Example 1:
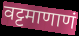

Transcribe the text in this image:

वट्टमाणाणं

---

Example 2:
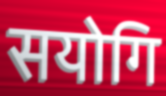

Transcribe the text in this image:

सयोगि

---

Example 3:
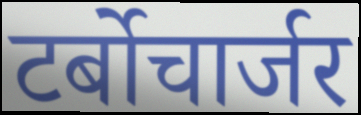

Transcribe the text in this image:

टर्बोचार्जर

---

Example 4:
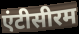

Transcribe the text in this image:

एंटीसीरम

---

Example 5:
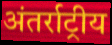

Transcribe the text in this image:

अंतर्राट्रीय